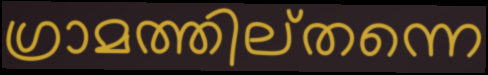
ഗ്രാമത്തില്തന്നെ